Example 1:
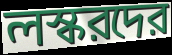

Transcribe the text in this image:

লস্করদের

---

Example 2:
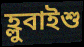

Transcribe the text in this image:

হ্লুবাইশু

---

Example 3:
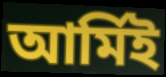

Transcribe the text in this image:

আর্মিই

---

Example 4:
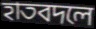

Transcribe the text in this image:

হাতবদলে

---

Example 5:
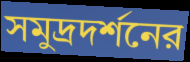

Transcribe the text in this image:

সমুদ্রদর্শনের